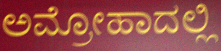
ಅಮ್ರೋಹಾದಲ್ಲಿ